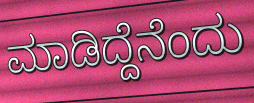
ಮಾಡಿದ್ದೆನೆಂದು